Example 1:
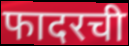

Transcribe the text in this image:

फादरची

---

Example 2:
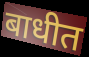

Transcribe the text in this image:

बाधीत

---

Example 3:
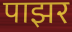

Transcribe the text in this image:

पाझर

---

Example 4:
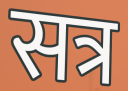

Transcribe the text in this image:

सत्र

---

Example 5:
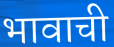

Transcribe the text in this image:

भावाची